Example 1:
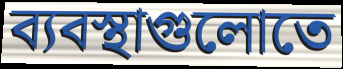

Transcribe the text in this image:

ব্যবস্থাগুলোতে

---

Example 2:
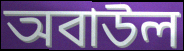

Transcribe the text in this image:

অবাউল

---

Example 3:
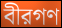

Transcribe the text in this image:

বীরগণ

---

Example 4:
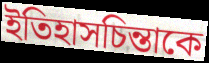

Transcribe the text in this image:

ইতিহাসচিন্তাকে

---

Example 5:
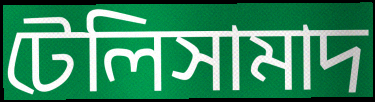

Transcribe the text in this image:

টেলিসামাদ